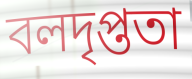
বলদৃপ্ততা